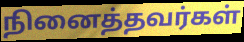
நினைத்தவர்கள்